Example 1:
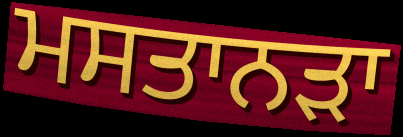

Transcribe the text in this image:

ਮਸਤਾਨੜਾ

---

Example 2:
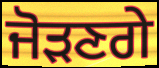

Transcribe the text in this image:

ਜੋੜਣਗੇ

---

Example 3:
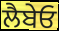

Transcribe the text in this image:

ਲੈਬੇਓ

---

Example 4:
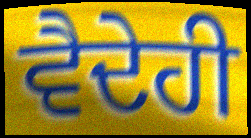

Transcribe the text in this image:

ਵੈਦੇਹੀ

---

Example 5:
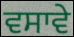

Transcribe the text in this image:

ਵਸਾਵੇ